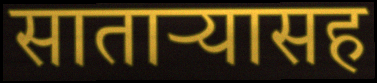
साताऱ्यासह